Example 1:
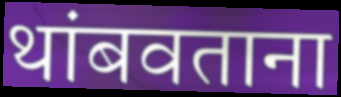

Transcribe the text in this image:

थांबवताना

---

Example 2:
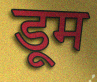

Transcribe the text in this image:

डूम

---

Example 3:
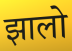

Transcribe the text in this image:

झालो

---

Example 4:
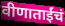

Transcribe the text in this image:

वीणाताईंचं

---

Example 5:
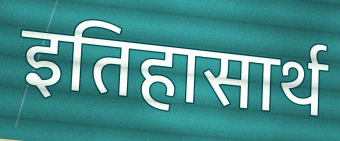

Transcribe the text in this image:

इतिहासार्थ